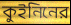
কুইনিনের